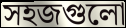
সহজগুলো